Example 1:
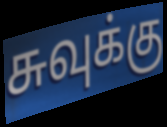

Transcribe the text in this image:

சுவுக்கு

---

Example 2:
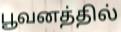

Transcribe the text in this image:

பூவனத்தில்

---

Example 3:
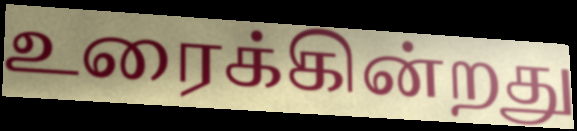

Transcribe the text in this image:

உரைக்கின்றது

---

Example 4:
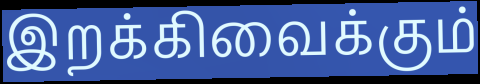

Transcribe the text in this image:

இறக்கிவைக்கும்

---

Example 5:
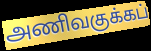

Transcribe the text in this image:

அணிவகுக்கப்